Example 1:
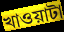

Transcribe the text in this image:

খাওয়াটা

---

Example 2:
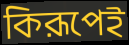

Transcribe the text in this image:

কিরূপেই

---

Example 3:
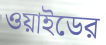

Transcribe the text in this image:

ওয়াইডের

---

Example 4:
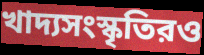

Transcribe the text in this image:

খাদ্যসংস্কৃতিরও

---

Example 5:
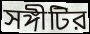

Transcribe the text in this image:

সঙ্গীটির